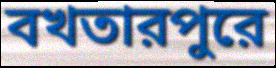
বখতারপুরে